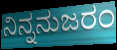
ನಿನ್ನನುಜರಂ